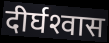
दीर्घश्वास